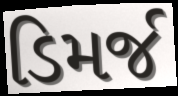
ડિમર્જ